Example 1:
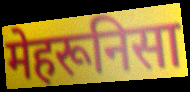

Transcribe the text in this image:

मेहरूनिसा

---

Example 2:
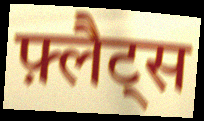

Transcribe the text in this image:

फ़्लैट्स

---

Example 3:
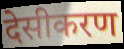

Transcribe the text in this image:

देसीकरण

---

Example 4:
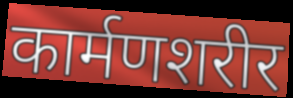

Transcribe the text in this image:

कार्मणशरीर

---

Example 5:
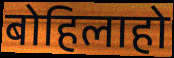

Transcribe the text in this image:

बोहिलाहो